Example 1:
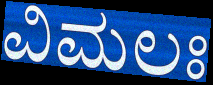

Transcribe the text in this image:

ವಿಮಲಃ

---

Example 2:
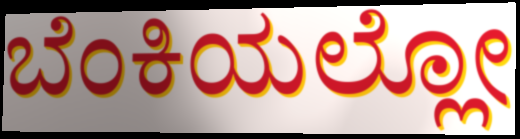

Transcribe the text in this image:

ಬೆಂಕಿಯಲ್ಲೋ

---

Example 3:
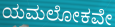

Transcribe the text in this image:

ಯಮಲೋಕವೇ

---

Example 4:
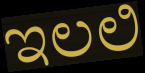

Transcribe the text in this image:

ಇಲಲಿ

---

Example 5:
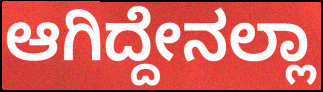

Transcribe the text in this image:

ಆಗಿದ್ದೇನಲ್ಲಾ